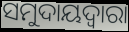
ସମୁଦାୟଦ୍ୱାରା